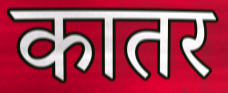
कातर